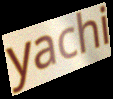
yachi